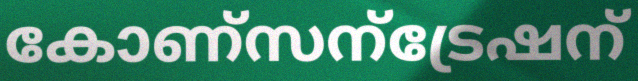
കോണ്സന്ട്രേഷന്